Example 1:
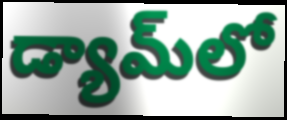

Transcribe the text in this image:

డ్యామ్‌లో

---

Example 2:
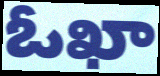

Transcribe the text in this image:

ఓఖా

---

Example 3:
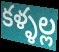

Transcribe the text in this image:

కళ్ళల్ల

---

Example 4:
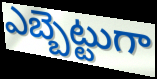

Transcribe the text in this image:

ఎబ్బెట్టుగా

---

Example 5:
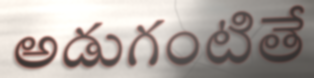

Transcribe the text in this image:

అడుగంటితే